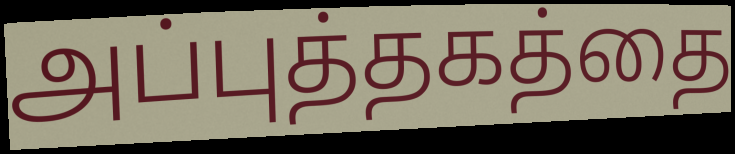
அப்புத்தகத்தை